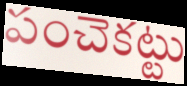
పంచెకట్టు